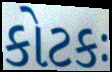
કોટકઃ